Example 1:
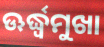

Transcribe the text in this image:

ଊର୍ଦ୍ଧ୍ବମୁଖା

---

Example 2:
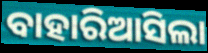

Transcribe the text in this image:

ବାହାରିଆସିଲା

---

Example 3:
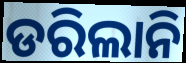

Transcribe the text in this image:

ଡରିଲାନି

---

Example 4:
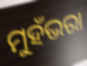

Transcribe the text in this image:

ମୁହଁଭରା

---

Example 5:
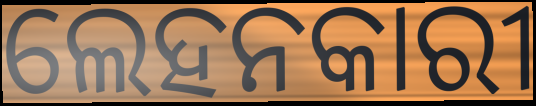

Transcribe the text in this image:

ଲେହନକାରୀ